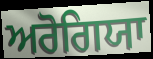
ਅਰੋਗਿਯਾ